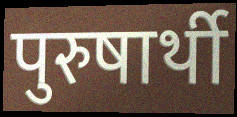
पुरुषार्थी